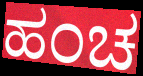
ಹಂಚ